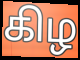
கிழ